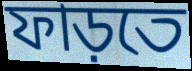
ফাড়তে